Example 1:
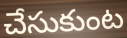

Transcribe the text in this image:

చేసుకుంట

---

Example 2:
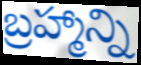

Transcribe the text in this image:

బ్రహ్మాన్ని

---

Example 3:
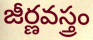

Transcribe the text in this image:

జీర్ణవస్త్రం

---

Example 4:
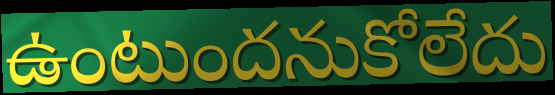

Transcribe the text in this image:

ఉంటుందనుకోలేదు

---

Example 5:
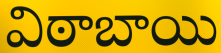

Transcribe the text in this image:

విఠాబాయి